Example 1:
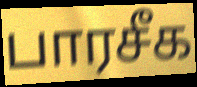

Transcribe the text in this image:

பாரசீக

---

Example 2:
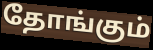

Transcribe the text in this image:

தோங்கும்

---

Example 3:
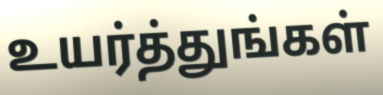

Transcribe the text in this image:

உயர்த்துங்கள்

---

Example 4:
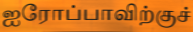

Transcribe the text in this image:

ஐரோப்பாவிற்குச்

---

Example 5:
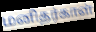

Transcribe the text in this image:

மனிதர்காள்